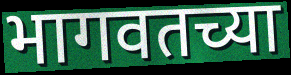
भागवतच्या